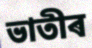
ভাতীৰ